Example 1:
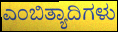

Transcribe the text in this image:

ಎಂಬಿತ್ಯಾದಿಗಳು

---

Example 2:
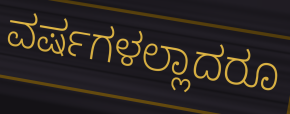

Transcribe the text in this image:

ವರ್ಷಗಳಲ್ಲಾದರೂ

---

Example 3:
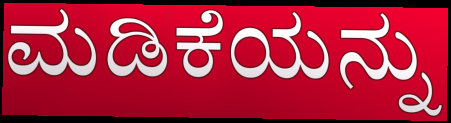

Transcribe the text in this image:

ಮಡಿಕೆಯನ್ನು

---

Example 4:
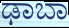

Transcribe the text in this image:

ಢಾಬಾ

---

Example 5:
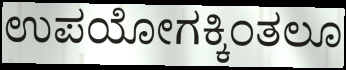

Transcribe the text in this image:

ಉಪಯೋಗಕ್ಕಿಂತಲೂ